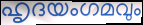
ഹൃദയംഗമവും